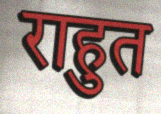
राहुत